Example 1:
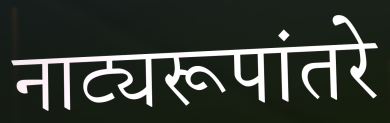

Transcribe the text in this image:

नाट्यरूपांतरे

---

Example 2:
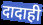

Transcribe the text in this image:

दादाही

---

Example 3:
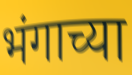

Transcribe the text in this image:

भंगाच्या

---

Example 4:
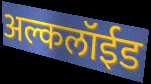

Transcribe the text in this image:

अल्कलॉईड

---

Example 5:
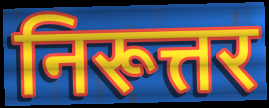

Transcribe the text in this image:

निरूत्तर